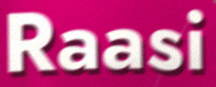
Raasi